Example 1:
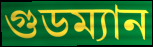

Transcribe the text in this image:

গুডম্যান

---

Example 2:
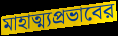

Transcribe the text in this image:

মাহাত্ম্যপ্রভাবের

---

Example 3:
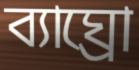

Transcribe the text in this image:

ব্যাঘ্রো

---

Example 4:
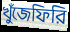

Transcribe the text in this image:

খুঁজেফিরি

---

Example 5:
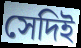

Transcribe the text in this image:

সেদিই